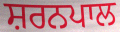
ਸ਼ਰਨਪਾਲ